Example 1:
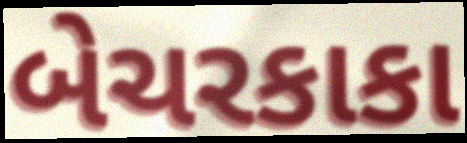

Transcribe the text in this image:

બેચરકાકા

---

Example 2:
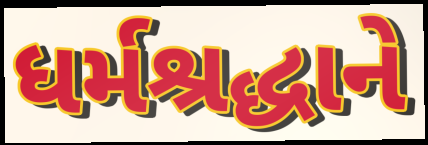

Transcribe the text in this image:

ધર્મશ્રદ્ધાને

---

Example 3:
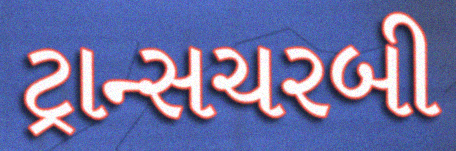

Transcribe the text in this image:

ટ્રાન્સચરબી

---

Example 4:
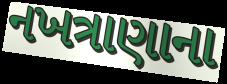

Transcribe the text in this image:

નખત્રાણાના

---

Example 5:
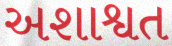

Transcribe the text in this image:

અશાશ્વત